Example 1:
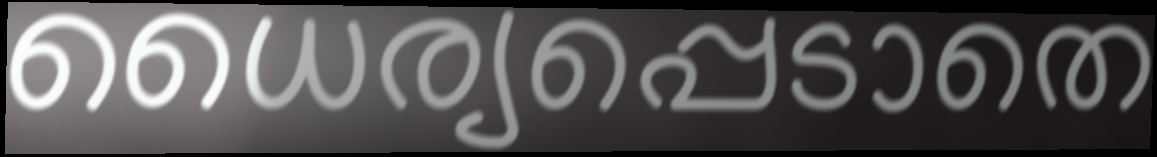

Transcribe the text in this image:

ധൈര്യപ്പെടാതെ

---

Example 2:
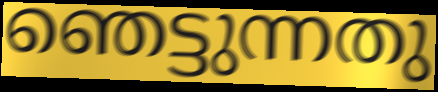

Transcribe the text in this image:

ഞെട്ടുന്നതു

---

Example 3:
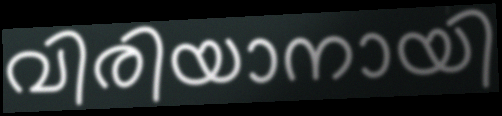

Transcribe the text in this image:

വിരിയാനായി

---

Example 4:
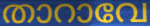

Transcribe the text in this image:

താറാവേ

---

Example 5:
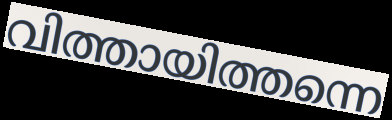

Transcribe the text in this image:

വിത്തായിത്തന്നെ